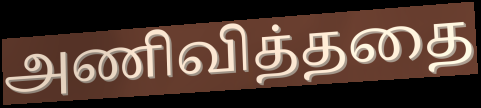
அணிவித்ததை